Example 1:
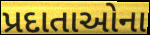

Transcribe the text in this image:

પ્રદાતાઓના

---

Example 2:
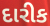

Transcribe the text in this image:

દારીક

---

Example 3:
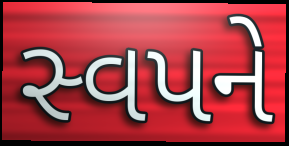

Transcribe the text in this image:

સ્વપને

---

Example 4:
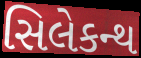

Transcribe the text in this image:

સિલેકન્થ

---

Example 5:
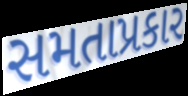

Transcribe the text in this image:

સમતાપ્રકાર